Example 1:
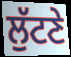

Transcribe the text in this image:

ਲੁੱਟਣੇ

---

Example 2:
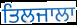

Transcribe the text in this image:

ਤਿਲਜਾਲਾ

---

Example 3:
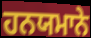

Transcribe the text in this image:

ਹਨਯਮਾਨੇ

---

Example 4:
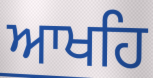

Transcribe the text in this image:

ਆਖਹਿ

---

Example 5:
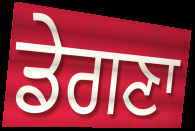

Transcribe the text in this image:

ਡੇਗਣਾ